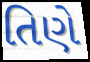
તિણે